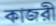
কাজরী